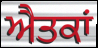
ਐਤਕਾਂ